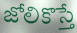
జోలికొస్తే